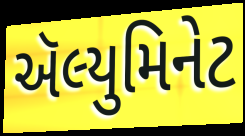
ઍલ્યુમિનેટ